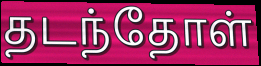
தடந்தோள்